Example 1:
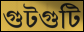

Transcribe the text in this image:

গুটগুটি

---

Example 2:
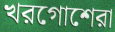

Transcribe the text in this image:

খরগোশেরা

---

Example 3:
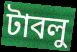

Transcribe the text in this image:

টাবলু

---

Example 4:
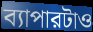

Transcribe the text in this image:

ব্যাপারটাও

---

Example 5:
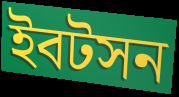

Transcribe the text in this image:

ইবটসন